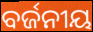
ବର୍ଜନୀୟ